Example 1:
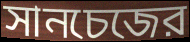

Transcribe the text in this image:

সানচেজের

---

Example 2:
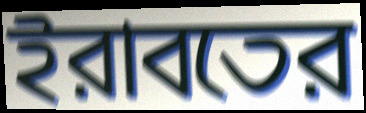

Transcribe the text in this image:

ইরাবতের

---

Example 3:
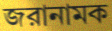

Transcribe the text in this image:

জরানামক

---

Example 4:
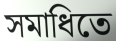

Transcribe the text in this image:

সমাধিতে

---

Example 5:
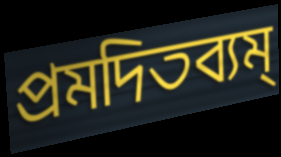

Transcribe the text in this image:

প্রমদিতব্যম্